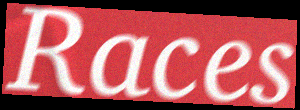
Races